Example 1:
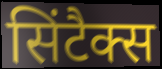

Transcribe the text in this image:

सिंटैक्स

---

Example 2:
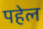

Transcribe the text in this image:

पहेल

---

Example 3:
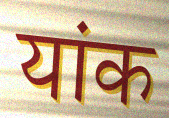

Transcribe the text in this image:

यांक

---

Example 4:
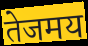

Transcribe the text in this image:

तेजमय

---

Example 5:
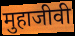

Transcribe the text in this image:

मुहाजीवी